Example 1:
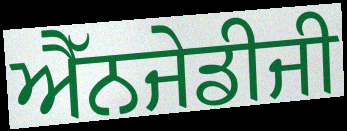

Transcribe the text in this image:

ਐੱਨਜੇਡੀਜੀ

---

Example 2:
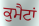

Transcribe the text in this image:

ਕੁਮੈਟਾਂ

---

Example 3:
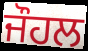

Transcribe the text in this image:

ਜੌਹਲ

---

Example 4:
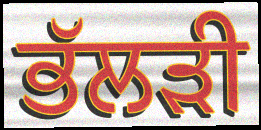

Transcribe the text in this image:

ਭੱਲੜੀ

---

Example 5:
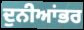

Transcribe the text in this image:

ਦੁਨੀਆਂਭਰ